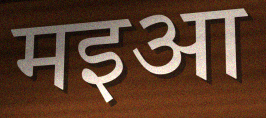
मइआ